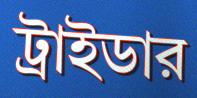
ট্রাইডার